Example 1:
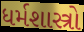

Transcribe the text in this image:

ધર્મશાસ્ત્રો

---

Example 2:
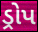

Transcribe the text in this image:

ડ્રોપ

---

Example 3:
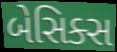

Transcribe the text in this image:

બેસિક્સ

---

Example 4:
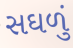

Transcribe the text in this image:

સઘળું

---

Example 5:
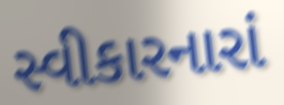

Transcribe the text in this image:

સ્વીકારનારાં